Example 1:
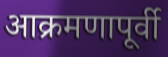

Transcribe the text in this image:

आक्रमणापूर्वी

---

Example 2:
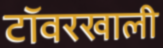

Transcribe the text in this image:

टॉवरखाली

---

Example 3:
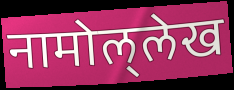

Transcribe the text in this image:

नामोल्लेख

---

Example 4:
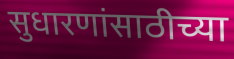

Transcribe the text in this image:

सुधारणांसाठीच्या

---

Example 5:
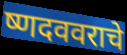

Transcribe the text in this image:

ष्णदववराचे